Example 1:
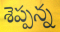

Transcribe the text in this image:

శెప్పన్న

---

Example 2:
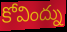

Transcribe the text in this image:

కోవింద్ను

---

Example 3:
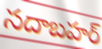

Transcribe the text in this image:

సదాబహర్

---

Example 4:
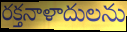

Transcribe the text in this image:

రక్తనాళాదులను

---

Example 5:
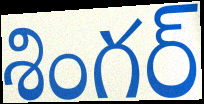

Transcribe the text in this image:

శింగర్